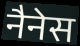
नैनेस